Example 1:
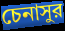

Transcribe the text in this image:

চেনাসুর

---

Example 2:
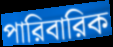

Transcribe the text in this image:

পারিবারিক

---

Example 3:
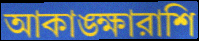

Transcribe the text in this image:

আকাঙ্ক্ষারাশি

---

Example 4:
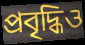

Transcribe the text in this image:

প্রবৃদ্ধিও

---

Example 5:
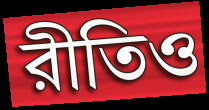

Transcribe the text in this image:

রীতিও